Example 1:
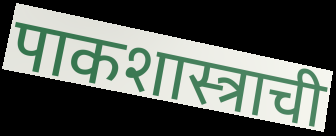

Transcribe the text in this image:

पाकशास्त्राची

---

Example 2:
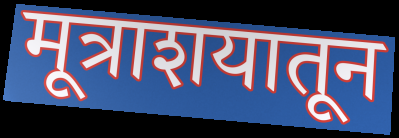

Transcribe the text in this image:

मूत्राशयातून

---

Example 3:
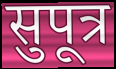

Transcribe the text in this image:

सुपूत्र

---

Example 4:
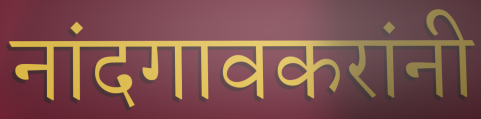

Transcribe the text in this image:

नांदगावकरांनी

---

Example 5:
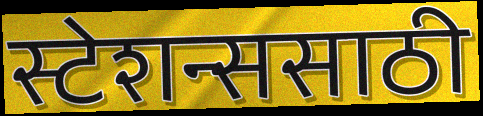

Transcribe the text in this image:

स्टेशन्ससाठी